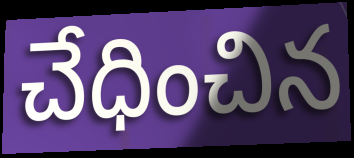
చేధించిన